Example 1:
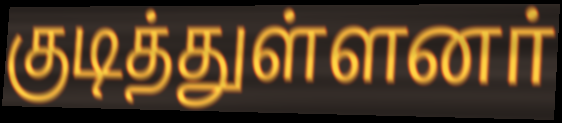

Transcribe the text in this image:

குடித்துள்ளனர்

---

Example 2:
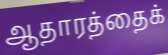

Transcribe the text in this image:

ஆதாரத்தைக்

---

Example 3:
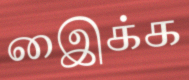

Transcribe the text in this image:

இைக்க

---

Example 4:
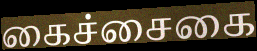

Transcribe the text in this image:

கைச்சைகை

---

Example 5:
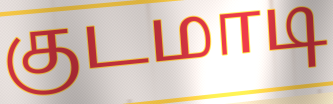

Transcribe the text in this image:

குடமாடி